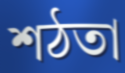
শঠতা